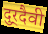
दुर्दैवी